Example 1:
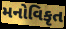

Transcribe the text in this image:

મનોવિકૃત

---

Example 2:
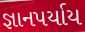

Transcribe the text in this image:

જ્ઞાનપર્યાય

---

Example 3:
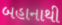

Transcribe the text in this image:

બહાનાથી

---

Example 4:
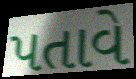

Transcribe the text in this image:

પતાવે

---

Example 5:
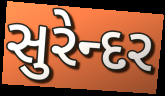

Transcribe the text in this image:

સુરેન્દર